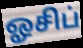
ஓசிப்